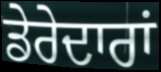
ਡੇਰੇਦਾਰਾਂ